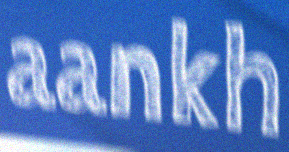
aankh